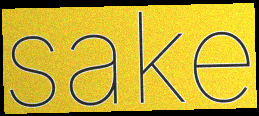
sake